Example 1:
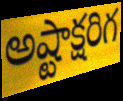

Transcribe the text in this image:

అష్టాక్షరిగ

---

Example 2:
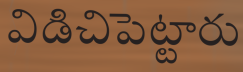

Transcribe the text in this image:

విడిచిపెట్టారు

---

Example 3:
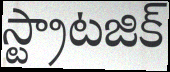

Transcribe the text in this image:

స్ట్రాటజిక్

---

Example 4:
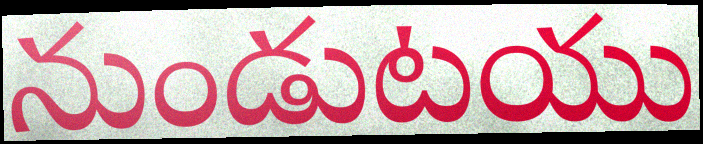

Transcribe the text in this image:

నుండుటయు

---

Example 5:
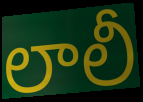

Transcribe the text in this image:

లాలీ